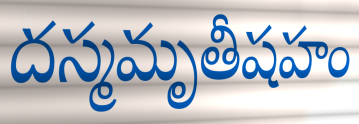
దస్మమృతీషహం